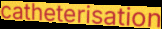
catheterisation